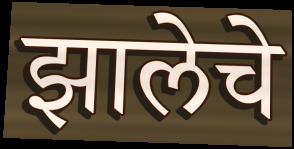
झालेचे